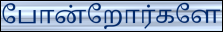
போன்றோர்களே